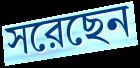
সরেছেন